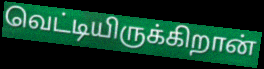
வெட்டியிருக்கிறான்